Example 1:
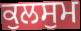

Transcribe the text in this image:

ਕੁਲਸੁਮ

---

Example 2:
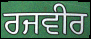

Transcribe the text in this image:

ਰਜਵੀਰ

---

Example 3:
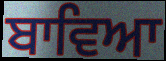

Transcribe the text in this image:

ਬਾਵਿਆ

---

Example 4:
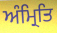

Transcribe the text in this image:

ਅੰਮ੍ਰਿਤਿ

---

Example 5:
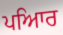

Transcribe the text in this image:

ਪਆਿਰ